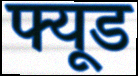
फ्यूड